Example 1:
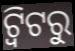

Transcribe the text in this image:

ଟ୍ବିଟରୁ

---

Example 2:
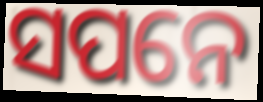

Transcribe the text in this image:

ସପନେ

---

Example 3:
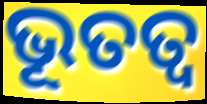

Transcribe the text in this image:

ଭୂତତ୍ୱ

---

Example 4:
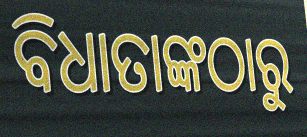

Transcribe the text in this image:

ବିଧାତାଙ୍କଠାରୁ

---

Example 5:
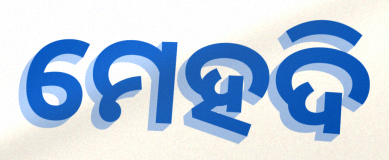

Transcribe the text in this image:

ମେହଦି